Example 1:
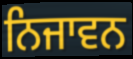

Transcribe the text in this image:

ਨਿਜਾਵਨ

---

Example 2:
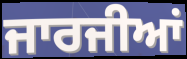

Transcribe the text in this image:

ਜਾਰਜੀਆਂ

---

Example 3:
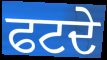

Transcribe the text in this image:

ਫਟਦੇ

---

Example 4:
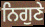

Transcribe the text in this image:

ਨਿਗੁਣੇ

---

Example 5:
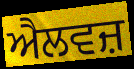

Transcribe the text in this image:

ਐਲਵਜ਼